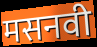
मसनवी